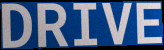
DRIVE